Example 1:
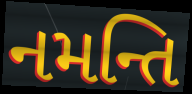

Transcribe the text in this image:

નમન્તિ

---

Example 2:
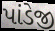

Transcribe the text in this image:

પાંડેજી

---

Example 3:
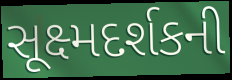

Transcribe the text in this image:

સૂક્ષ્મદર્શકની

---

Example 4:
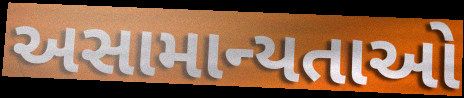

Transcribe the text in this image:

અસામાન્યતાઓ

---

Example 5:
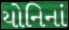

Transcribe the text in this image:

યોનિનાં